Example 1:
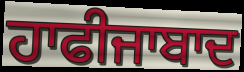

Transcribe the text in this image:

ਹਾਫੀਜਾਬਾਦ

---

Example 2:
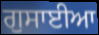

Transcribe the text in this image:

ਗੁਸਾਈਆ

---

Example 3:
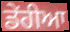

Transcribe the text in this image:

ਡੇਂਹੀਆ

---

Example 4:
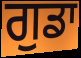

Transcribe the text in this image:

ਗੁਡਾ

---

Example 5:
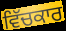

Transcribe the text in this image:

ਵਿੱਚਕਾਰ